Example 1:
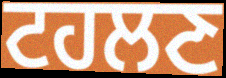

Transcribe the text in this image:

ਟਹਲਣ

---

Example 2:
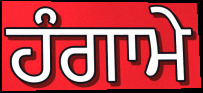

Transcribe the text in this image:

ਹੰਗਾਮੇ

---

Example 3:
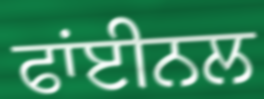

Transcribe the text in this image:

ਫਾਂਈਨਲ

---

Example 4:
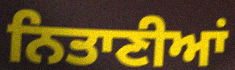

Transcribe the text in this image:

ਨਿਤਾਣੀਆਂ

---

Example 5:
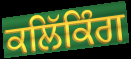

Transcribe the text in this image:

ਕਲਿੱਕਿੰਗ